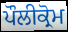
ਪੌਲੀਕ੍ਰੋਮ